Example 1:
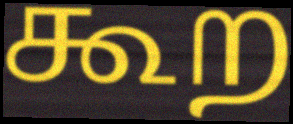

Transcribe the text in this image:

கூற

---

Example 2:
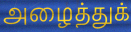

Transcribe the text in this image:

அழைத்துக்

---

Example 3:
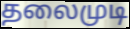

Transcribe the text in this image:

தலைமுடி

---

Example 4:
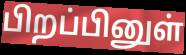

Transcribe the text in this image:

பிறப்பினுள்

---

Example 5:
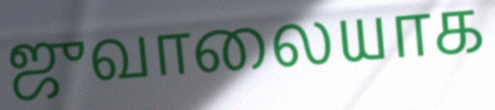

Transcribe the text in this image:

ஜுவாலையாக